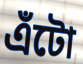
এঁটো